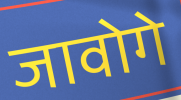
जावोगे